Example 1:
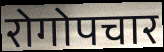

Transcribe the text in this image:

रोगोपचार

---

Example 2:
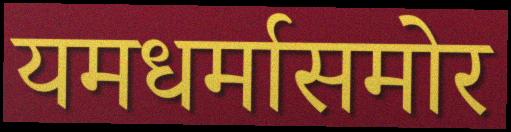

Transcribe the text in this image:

यमधर्मासमोर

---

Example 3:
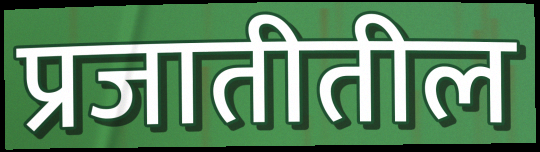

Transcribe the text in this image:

प्रजातीतील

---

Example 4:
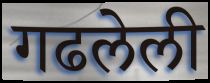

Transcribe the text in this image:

गढलेली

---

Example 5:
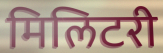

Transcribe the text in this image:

मिलिटरी